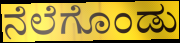
ನೆಲೆಗೊಂಡು